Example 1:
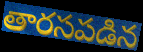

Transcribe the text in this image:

తారసపడిన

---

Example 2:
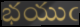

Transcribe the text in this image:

భయుఁ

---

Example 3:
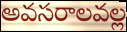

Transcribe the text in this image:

అవసరాలవల్ల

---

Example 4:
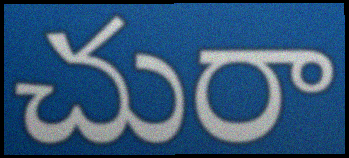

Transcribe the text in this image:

చురా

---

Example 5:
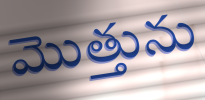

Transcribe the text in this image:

మొత్తును